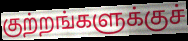
குற்றங்களுக்குச்